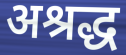
अश्रद्ध